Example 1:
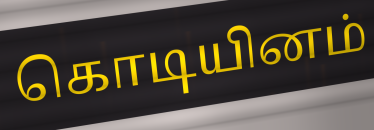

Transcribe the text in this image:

கொடியினம்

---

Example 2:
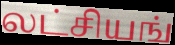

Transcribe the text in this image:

லட்சியங்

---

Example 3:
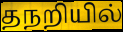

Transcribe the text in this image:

தநறியில்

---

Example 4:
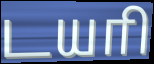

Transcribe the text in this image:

டயரி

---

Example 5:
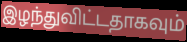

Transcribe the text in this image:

இழந்துவிட்டதாகவும்